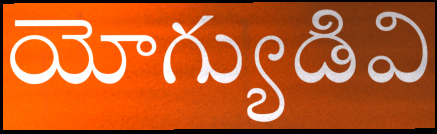
యోగ్యుడివి